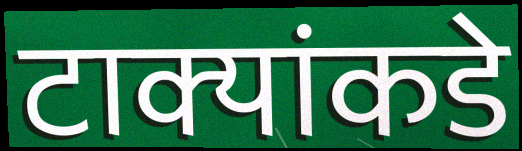
टाक्यांकडे